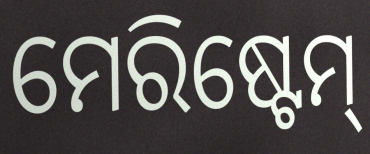
ମେରିଷ୍ଟେମ୍